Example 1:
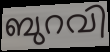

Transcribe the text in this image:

ബുറവി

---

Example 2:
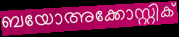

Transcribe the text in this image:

ബയോഅക്കോസ്റ്റിക്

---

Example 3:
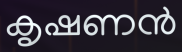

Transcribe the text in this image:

കൃഷണൻ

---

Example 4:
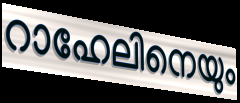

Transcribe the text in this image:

റാഹേലിനെയും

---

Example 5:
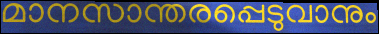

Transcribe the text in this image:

മാനസാന്തരപ്പെടുവാനും